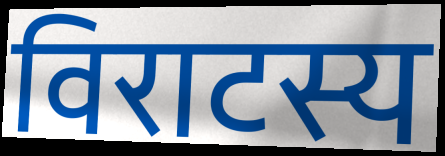
विराटस्य